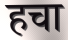
हचा